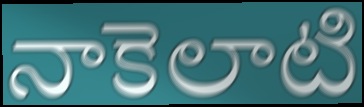
నాకెలాటి